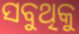
ସବୁଥିକୁ